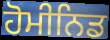
ਹੋਮੀਨਿਡ